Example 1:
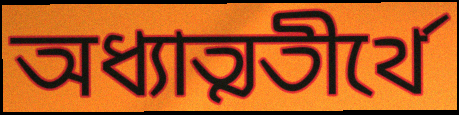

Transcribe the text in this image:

অধ্যাত্মতীর্থে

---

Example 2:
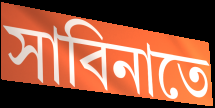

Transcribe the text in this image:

সাবিনাতে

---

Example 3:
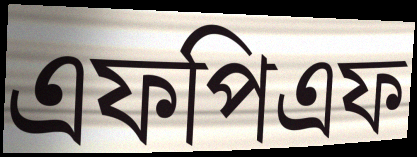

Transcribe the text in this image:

এফপিএফ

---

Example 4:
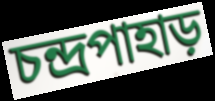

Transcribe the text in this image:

চন্দ্রপাহাড়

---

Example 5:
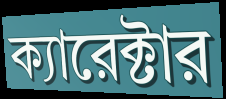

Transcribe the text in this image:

ক্যারেক্টার